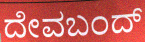
ದೇವಬಂದ್